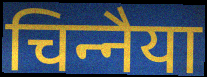
चिन्नैया